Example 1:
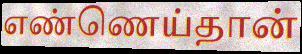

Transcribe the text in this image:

எண்ணெய்தான்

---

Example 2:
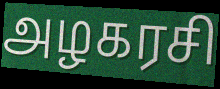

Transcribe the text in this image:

அழகரசி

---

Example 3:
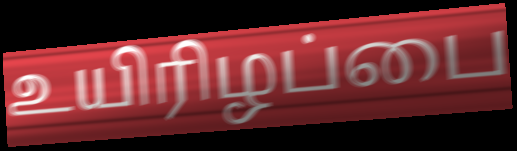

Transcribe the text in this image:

உயிரிழப்பை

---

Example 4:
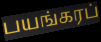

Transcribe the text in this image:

பயங்கரப்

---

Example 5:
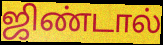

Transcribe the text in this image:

ஜிண்டால்